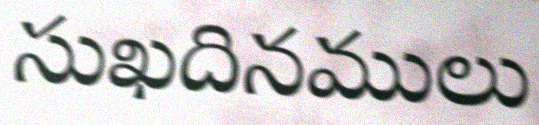
సుఖదినములు